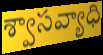
శ్వాసవ్యాధి